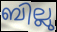
ബില്ലു